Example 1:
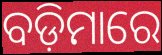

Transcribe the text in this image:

ବଡ଼ିମାରେ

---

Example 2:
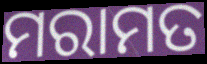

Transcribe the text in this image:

ମରାମତ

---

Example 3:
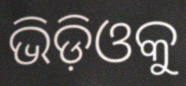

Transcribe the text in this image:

ଭିଡ଼ିଓକୁ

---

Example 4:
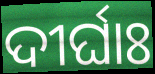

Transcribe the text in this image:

ଦୀର୍ଘାଃ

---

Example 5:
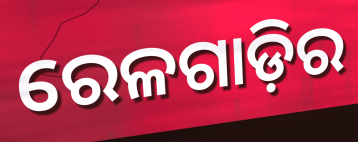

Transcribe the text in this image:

ରେଳଗାଡ଼ିର